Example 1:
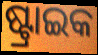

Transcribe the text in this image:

ଷ୍ଟ୍ରାଇକ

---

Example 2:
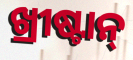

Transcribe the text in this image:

ଖ୍ରୀଷ୍ଟାନ୍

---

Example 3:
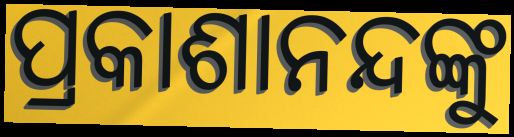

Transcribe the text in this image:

ପ୍ରକାଶାନନ୍ଦଙ୍କୁ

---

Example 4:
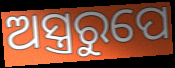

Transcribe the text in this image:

ଅସ୍ତ୍ରରୁପେ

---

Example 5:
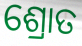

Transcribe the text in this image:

ଶ୍ରୋତ